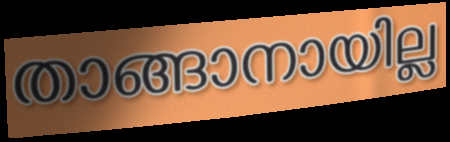
താങ്ങാനായില്ല